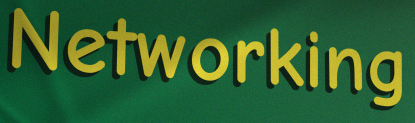
Networking